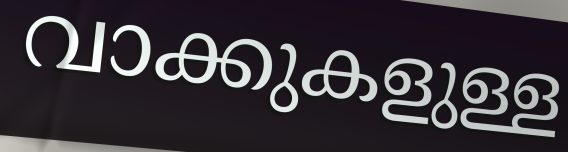
വാക്കുകളുള്ള